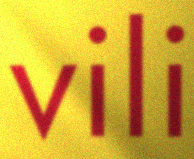
vili